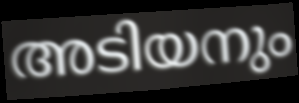
അടിയനും